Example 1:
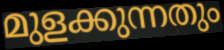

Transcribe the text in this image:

മുളക്കുന്നതും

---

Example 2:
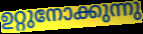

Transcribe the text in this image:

ഉറ്റുനോക്കുന്നു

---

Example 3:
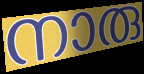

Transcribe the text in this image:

നാരു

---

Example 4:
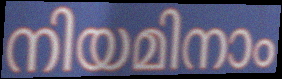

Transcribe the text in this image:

നിയമിനാം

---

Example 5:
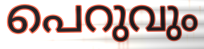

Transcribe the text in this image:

പെറുവും